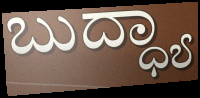
ಬುದ್ಧ್ಯಾ